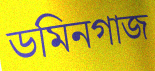
ডমিনগাজ